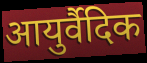
आयुर्वैदिक